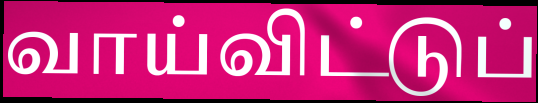
வாய்விட்டுப்